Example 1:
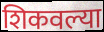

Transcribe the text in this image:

शिकवल्या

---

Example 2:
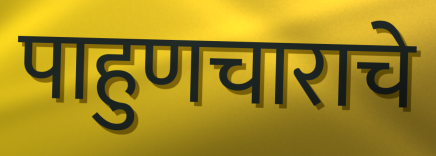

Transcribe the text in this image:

पाहुणचाराचे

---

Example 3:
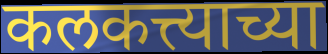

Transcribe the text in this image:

कलकत्त्याच्या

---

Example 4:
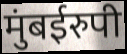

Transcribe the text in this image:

मुंबईरुपी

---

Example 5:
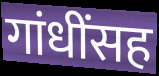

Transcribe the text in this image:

गांधींसह